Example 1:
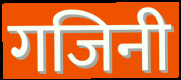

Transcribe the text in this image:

गजिनी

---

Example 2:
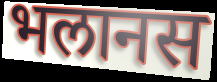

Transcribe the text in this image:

भलानस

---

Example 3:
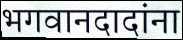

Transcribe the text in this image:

भगवानदादांना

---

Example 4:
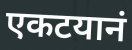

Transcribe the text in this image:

एकटयानं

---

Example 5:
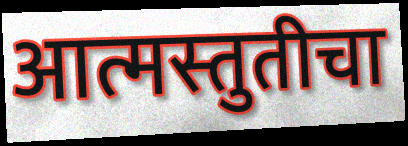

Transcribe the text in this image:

आत्मस्तुतीचा